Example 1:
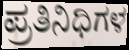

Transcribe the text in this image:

ಪ್ರತಿನಿಧಿಗಳ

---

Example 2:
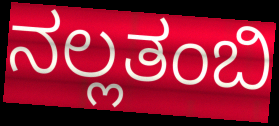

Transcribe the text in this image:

ನಲ್ಲತಂಬಿ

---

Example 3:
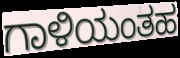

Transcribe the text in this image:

ಗಾಳಿಯಂತಹ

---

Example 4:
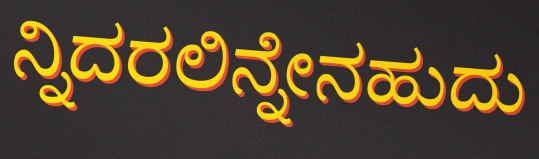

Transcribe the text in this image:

ನ್ನಿದರಲಿನ್ನೇನಹುದು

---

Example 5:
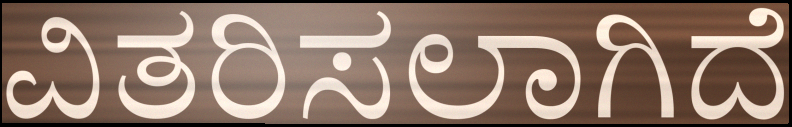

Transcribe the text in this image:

ವಿತರಿಸಲಾಗಿದೆ